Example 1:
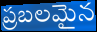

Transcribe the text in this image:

ప్రబలమైన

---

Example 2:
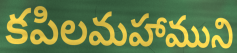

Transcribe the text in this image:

కపిలమహాముని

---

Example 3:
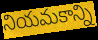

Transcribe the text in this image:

నియమకాన్ని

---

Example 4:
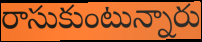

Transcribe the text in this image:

రాసుకుంటున్నారు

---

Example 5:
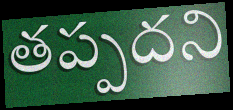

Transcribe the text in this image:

తప్పదని